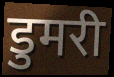
डुमरी